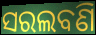
ସରଲବଣି